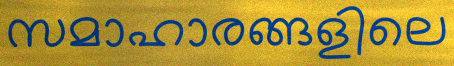
സമാഹാരങ്ങളിലെ